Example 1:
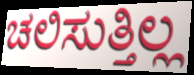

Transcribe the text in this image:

ಚಲಿಸುತ್ತಿಲ್ಲ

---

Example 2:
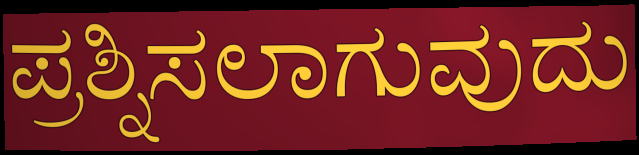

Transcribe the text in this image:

ಪ್ರಶ್ನಿಸಲಾಗುವುದು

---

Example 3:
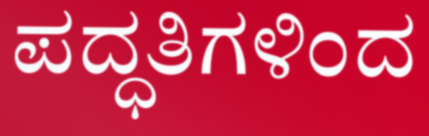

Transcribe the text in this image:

ಪದ್ಧತಿಗಳಿಂದ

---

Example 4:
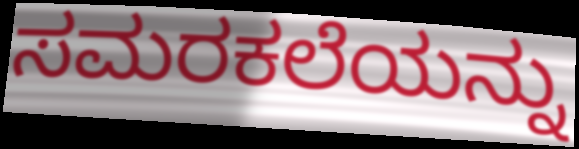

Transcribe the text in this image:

ಸಮರಕಲೆಯನ್ನು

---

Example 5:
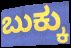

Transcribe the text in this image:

ಬುಕ್ಕು